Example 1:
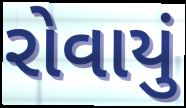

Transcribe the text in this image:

રોવાયું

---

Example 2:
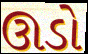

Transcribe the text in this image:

ઊડો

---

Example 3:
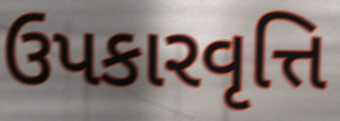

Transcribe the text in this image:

ઉપકારવૃત્તિ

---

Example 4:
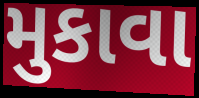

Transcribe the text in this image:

મુકાવા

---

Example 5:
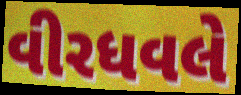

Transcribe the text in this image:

વીરધવલે